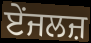
ਏਂਜਲਜ਼